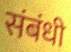
संबंधी